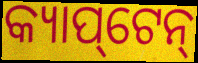
କ୍ୟାପ୍‌ଟେନ୍